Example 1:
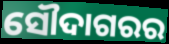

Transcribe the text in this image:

ସୌଦାଗରର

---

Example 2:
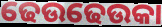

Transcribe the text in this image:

ଢେଉଢେଉକା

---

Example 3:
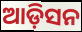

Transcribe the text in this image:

ଆଡ଼ିସନ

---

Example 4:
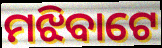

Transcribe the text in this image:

ମଝିବାଟେ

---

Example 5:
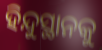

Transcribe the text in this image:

ହିନ୍ଦୁସ୍ଥାନକୁ